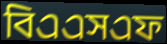
বিএএসএফ